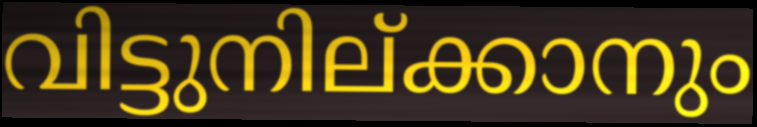
വിട്ടുനില്ക്കാനും